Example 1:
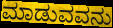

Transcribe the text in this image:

ಮಾಡುವವನು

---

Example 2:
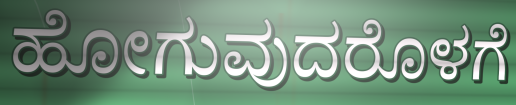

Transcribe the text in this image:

ಹೋಗುವುದರೊಳಗೆ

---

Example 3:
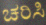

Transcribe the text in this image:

ಚರಿಸಿ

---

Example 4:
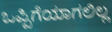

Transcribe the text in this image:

ಒಪ್ಪಿಗೆಯಾಗಲಿಲ್ಲ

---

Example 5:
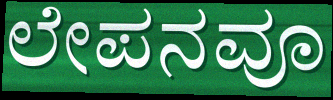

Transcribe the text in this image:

ಲೇಪನವೂ